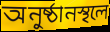
অনুষ্ঠানস্থলে